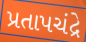
પ્રતાપચંદ્રે